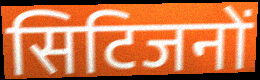
सिटिजनों